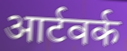
आर्टवर्क